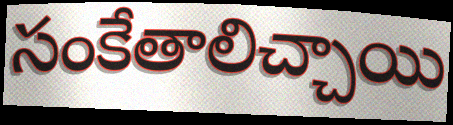
సంకేతాలిచ్చాయి